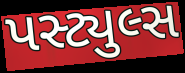
પસ્ટ્યુલ્સ